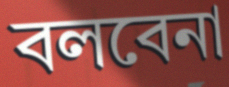
বলবেনা